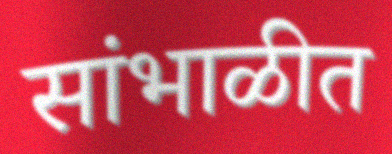
सांभाळीत